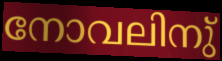
നോവലിനു്